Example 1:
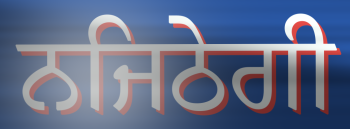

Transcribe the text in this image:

ਨਜਿਠੇਗੀ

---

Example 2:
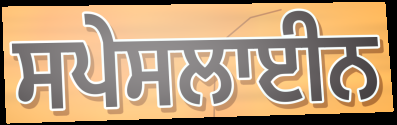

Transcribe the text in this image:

ਸਪੇਸਲਾਈਨ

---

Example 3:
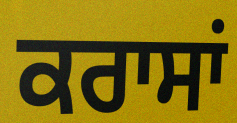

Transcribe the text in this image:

ਕਰਾਸਾਂ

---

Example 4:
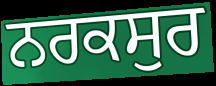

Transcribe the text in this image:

ਨਰਕਸੁਰ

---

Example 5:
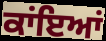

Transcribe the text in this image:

ਕਾਂਇਆਂ